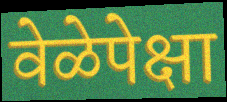
वेळेपेक्षा